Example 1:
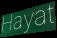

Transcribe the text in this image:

Hayat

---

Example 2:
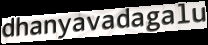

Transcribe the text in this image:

dhanyavadagalu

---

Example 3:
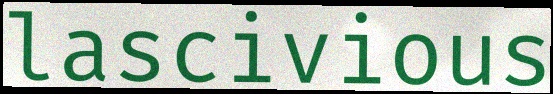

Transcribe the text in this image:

lascivious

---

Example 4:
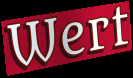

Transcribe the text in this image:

Wert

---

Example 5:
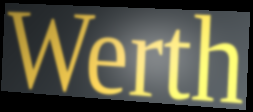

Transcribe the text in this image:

Werth